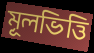
মূলভিত্তি